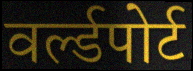
वर्ल्डपोर्ट